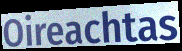
Oireachtas